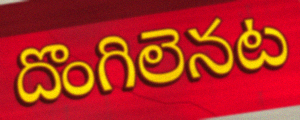
దొంగిలెనట